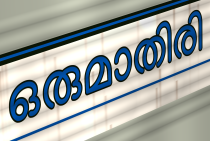
ഒരുമാതിരി